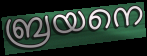
ബ്രയനെ